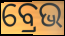
ବ୍ରେଭ